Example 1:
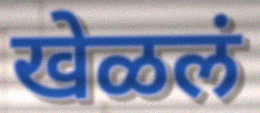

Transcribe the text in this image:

खेळलं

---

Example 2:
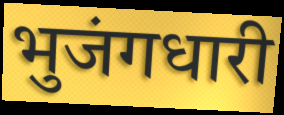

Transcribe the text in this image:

भुजंगधारी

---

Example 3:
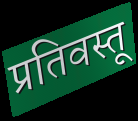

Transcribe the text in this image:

प्रतिवस्तू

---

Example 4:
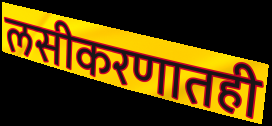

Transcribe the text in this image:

लसीकरणातही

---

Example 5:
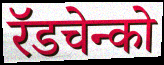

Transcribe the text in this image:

रॅडचेन्को